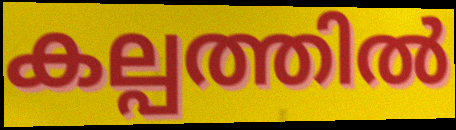
കല്പത്തിൽ